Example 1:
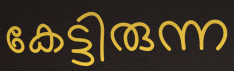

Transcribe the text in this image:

കേട്ടിരുന്ന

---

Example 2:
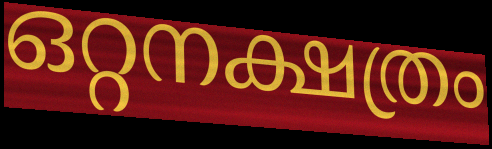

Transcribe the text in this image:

ഒറ്റനക്ഷത്രം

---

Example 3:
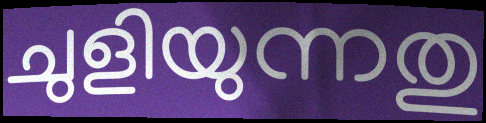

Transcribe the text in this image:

ചുളിയുന്നതു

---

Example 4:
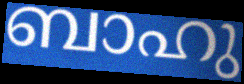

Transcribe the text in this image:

ബാഹു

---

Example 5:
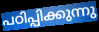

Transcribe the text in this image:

പഠിപ്പിക്കുന്നു